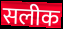
सलीक